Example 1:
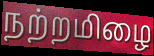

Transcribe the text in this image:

நற்றமிழை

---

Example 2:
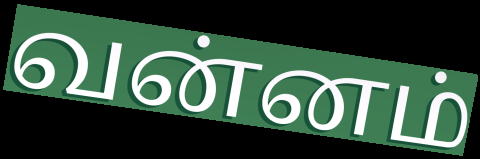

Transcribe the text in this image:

வன்னம்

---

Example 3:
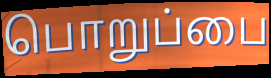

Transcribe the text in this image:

பொறுப்பை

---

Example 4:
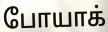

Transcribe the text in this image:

போயாக்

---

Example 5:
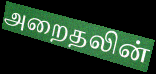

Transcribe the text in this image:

அறைதலின்